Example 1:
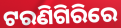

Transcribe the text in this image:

ଟରଣିଗିରିରେ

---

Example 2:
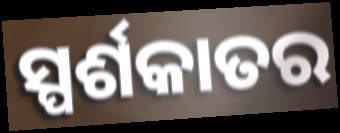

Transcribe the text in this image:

ସ୍ପର୍ଶକାତର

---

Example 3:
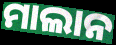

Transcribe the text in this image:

ମାଲାନ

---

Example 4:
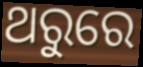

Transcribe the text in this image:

ଥରୁରେ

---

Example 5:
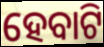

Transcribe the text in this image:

ହେବାଟି